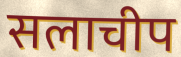
सलाचीप